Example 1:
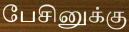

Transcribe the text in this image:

பேசினுக்கு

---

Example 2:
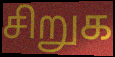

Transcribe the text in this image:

சிறுக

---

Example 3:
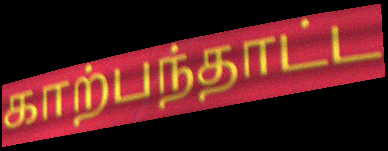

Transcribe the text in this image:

காற்பந்தாட்ட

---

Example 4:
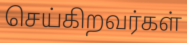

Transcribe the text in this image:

செய்கிறவர்கள்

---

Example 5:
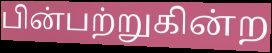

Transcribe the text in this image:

பின்பற்றுகின்ற